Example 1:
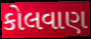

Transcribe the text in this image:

કોલવાણ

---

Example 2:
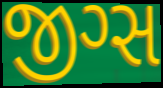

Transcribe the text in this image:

જીગ્સ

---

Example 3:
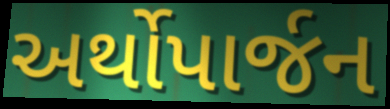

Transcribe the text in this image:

અર્થોપાર્જન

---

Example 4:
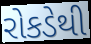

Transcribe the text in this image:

રોકડેથી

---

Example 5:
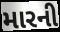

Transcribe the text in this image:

મારની